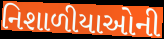
નિશાળીયાઓની